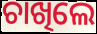
ଚାଖିଲେ